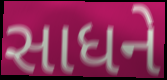
સાધને